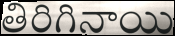
తిరిగినాయి